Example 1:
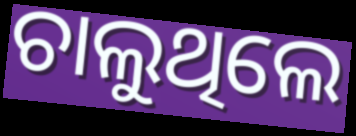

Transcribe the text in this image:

ଚାଲୁଥିଲେ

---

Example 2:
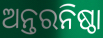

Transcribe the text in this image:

ଅନ୍ତରନିଷ୍ଠା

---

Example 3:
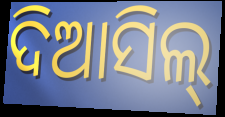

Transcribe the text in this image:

ଦିଆସିଲ୍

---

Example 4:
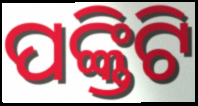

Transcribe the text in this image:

ପଙ୍କ୍ତିଟି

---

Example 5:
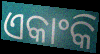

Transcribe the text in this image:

ଏକାଂକି